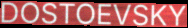
DOSTOEVSKY